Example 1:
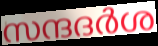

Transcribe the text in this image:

സന്ദദർശ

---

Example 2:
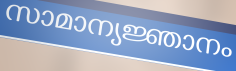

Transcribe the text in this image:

സാമാന്യജ്ഞാനം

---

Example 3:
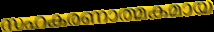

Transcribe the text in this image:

സഹകരണാത്മകമായ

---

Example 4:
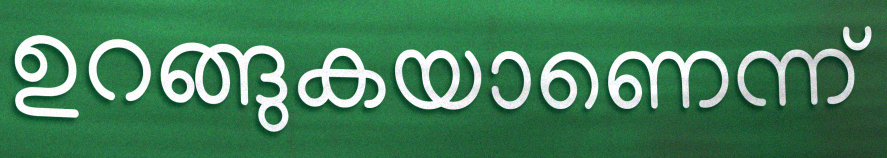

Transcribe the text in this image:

ഉറങ്ങുകയാണെന്ന്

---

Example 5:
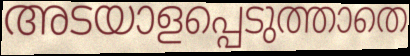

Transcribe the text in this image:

അടയാളപ്പെടുത്താതെ